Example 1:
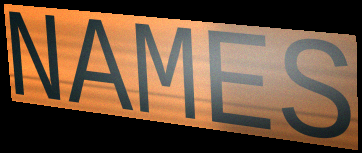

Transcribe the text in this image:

NAMES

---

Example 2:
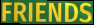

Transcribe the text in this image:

FRIENDS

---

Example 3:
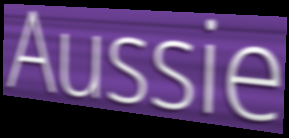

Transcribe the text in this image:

Aussie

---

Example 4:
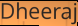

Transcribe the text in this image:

Dheeraj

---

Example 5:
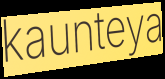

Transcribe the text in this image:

kaunteya